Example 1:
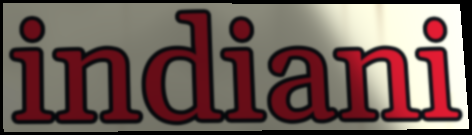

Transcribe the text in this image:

indiani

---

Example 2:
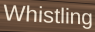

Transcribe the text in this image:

Whistling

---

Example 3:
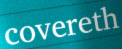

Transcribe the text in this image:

covereth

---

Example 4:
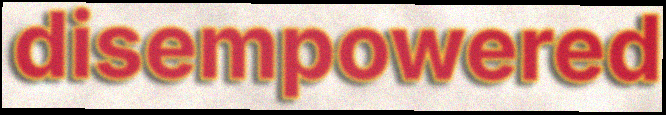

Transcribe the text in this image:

disempowered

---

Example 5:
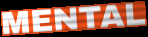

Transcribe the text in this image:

MENTAL